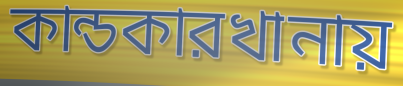
কান্ডকারখানায়